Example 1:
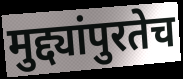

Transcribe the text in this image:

मुद्द्यांपुरतेच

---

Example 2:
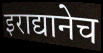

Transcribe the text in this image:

इराद्यानेच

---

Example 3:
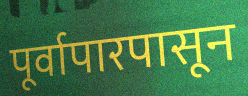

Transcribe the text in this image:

पूर्वापारपासून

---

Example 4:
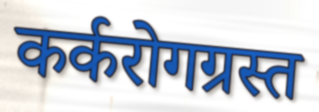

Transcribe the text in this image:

कर्करोगग्रस्त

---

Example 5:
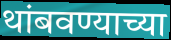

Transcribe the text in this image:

थांबवण्याच्या